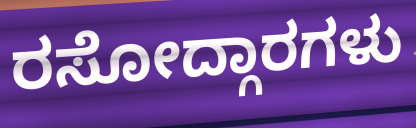
ರಸೋದ್ಗಾರಗಳು